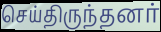
செய்திருந்தனர்